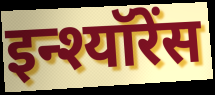
इन्श्यॉरेंस